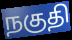
நகுதி